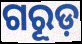
ଗରୂଡ଼